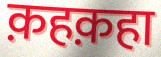
क़हक़हा